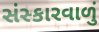
સંસ્કારવાળું